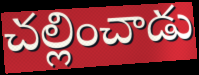
చల్లించాడు